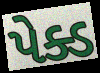
પેક્ડ